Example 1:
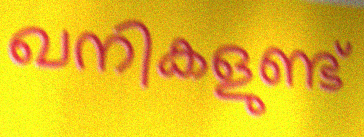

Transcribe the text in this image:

ഖനികളുണ്ട്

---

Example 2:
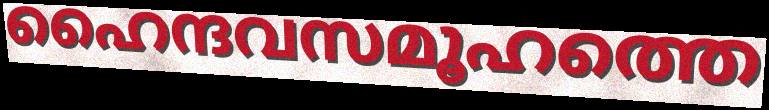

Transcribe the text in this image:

ഹൈന്ദവസമൂഹത്തെ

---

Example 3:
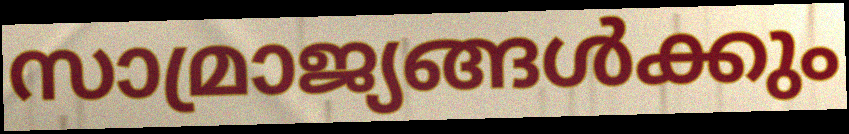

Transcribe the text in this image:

സാമ്രാജ്യങ്ങൾക്കും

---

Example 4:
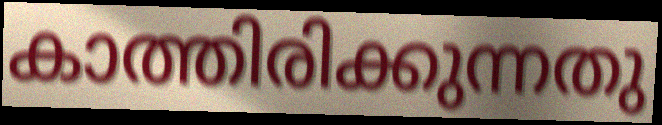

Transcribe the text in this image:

കാത്തിരിക്കുന്നതു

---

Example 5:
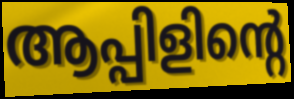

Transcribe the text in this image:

ആപ്പിളിന്റെ